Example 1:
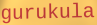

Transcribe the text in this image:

gurukula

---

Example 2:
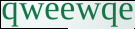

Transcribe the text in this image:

qweewqe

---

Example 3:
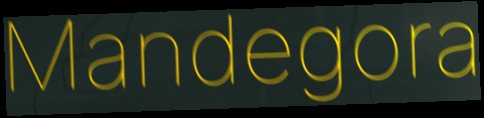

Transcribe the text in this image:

Mandegora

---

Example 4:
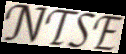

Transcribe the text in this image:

NTSE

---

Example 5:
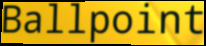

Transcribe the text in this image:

Ballpoint